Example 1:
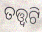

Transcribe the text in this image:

ତତ୍ତ୍ଵଟି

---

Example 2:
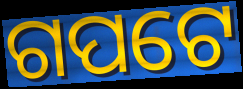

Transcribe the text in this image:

ଗପଟେ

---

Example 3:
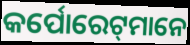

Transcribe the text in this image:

କର୍ପୋରେଟ୍‌ମାନେ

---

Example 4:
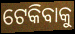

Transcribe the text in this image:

ଟେକିବାକୁ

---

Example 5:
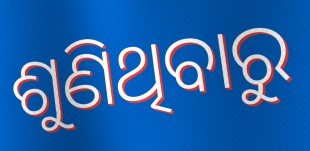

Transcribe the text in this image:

ଶୁଣିଥିବାରୁ